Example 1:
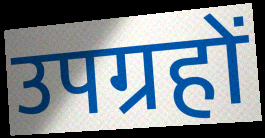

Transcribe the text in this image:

उपग्रहों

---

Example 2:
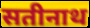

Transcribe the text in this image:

सतीनाथ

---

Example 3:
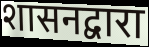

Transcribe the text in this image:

शासनद्वारा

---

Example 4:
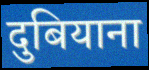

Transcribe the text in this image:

दुबियाना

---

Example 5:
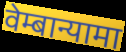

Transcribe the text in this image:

वेम्बान्यामा